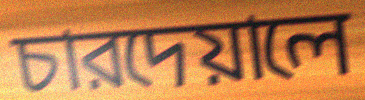
চারদেয়ালে